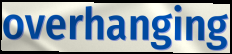
overhanging